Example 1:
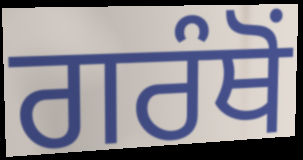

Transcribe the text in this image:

ਗਰੰਥੋਂ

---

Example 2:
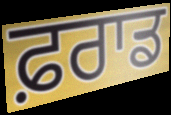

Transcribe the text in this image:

ਫ਼ਰਾਡ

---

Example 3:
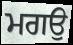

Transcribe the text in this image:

ਮਗਉ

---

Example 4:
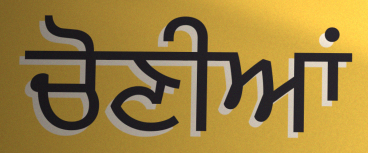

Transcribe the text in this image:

ਚੋਣੀਆਂ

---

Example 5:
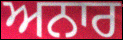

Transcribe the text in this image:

ਅਨਾਰ